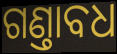
ଗଣ୍ତାବଧ